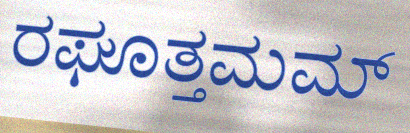
ರಘೂತ್ತಮಮ್